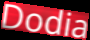
Dodia